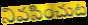
నివసించుట